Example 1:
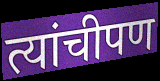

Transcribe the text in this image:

त्यांचीपण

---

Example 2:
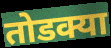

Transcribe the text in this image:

तोडक्या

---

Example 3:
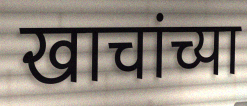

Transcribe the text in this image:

खाचांच्या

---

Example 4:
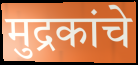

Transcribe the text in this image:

मुद्रकांचे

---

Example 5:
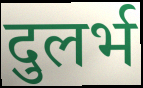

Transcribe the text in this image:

दुलर्भ